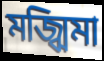
মজ্ঝিমা